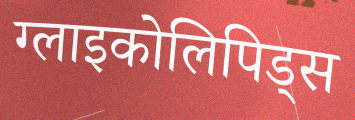
ग्लाइकोलिपिड्स